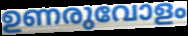
ഉണരുവോളം